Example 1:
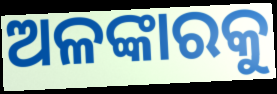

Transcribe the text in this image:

ଅଳଙ୍କାରକୁ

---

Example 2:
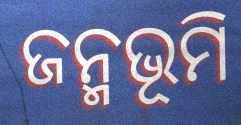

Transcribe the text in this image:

ଜନ୍ମଭୂମି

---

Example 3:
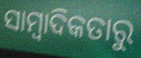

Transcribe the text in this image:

ସାମ୍ବାଦିକତାରୁ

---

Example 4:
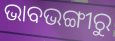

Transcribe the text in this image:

ଭାବଭଙ୍ଗୀରୁ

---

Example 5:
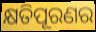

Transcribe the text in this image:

କ୍ଷତିପୂରଣର